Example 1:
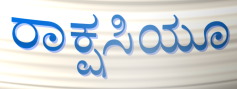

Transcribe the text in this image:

ರಾಕ್ಷಸಿಯೂ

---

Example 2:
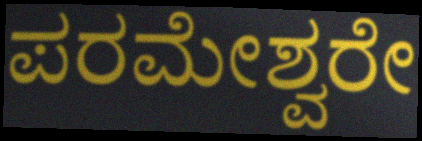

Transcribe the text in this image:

ಪರಮೇಶ್ವರೇ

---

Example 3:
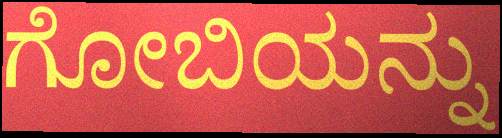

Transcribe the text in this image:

ಗೋಬಿಯನ್ನು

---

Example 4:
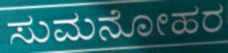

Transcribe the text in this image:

ಸುಮನೋಹರ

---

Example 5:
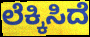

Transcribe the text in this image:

ಲೆಕ್ಕಿಸಿದೆ